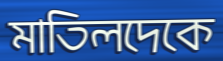
মাতিলদেকে